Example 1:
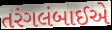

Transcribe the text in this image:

તરંગલંબાઈએ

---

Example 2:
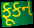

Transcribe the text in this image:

ફૂકન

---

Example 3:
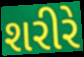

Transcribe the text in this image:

શરીરે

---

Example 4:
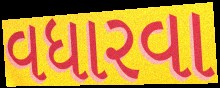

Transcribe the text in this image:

વધારવા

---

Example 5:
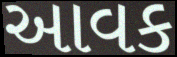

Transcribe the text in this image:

આવક